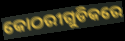
କୋଠରୀଗୁଡିକରେ